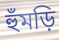
হুঁমড়ি